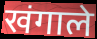
खंगाले